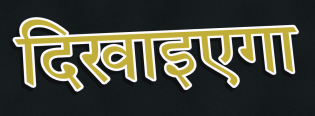
दिखाइएगा